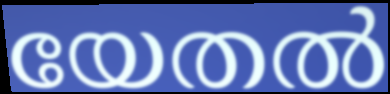
യേതൽ